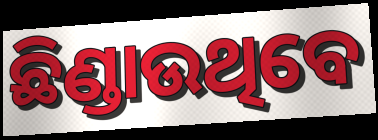
ଛିଣ୍ଡାଉଥିବେ